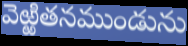
వెఱ్ఱితనముండును